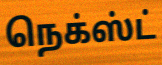
நெக்ஸ்ட்